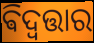
ଵିଦ୍ବତ୍ତାର